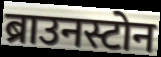
ब्राउनस्टोन